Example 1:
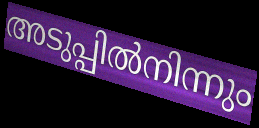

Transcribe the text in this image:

അടുപ്പിൽനിന്നും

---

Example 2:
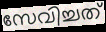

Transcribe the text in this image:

സേവിച്ചത്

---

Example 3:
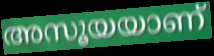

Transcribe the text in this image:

അസൂയയാണ്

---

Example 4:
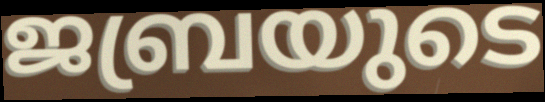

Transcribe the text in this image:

ജബ്രയുടെ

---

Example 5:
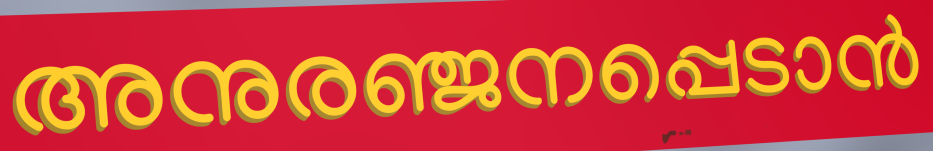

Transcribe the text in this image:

അനുരഞ്ജനപ്പെടാൻ